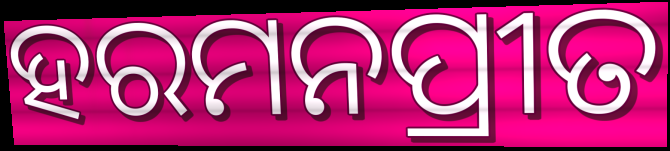
ହରମନପ୍ରୀତ